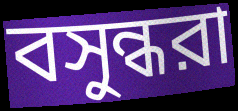
বসুন্ধরা